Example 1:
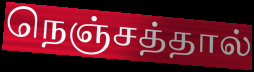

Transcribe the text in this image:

நெஞ்சத்தால்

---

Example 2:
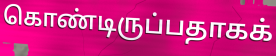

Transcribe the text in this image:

கொண்டிருப்பதாகக்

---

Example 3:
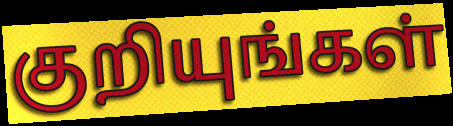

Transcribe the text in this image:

குறியுங்கள்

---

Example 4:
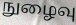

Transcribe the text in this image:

நுழைவு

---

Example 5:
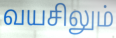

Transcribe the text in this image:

வயசிலும்